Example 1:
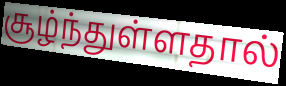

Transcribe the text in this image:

சூழ்ந்துள்ளதால்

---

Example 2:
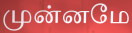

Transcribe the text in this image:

முன்னமே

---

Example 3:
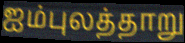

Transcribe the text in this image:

ஐம்புலத்தாறு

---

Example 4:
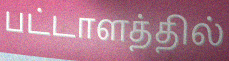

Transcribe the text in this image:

பட்டாளத்தில்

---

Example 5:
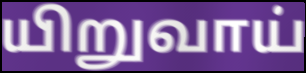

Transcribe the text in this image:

யிறுவாய்